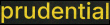
prudential